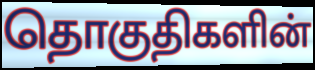
தொகுதிகளின்